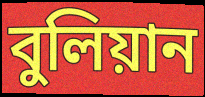
বুলিয়ান